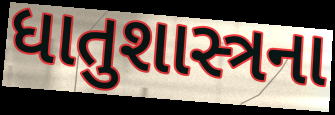
ધાતુશાસ્ત્રના